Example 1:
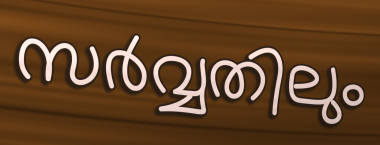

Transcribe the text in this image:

സർവ്വതിലും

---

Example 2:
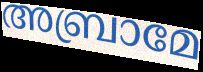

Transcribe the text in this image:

അബ്രാമേ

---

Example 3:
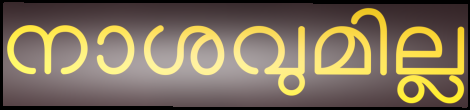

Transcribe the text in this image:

നാശവുമില്ല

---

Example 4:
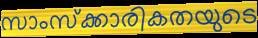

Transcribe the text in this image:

സാംസ്ക്കാരികതയുടെ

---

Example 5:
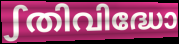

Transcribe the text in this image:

ഽതിവിദ്ധോ